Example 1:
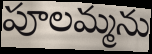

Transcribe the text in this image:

పూలమ్మను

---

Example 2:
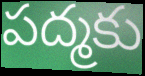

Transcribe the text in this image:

పద్మకు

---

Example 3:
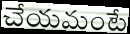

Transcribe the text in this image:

చేయమంటే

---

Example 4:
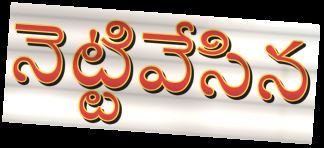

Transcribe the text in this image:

నెట్టివేసిన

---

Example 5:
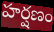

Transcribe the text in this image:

హర్షణం